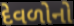
દેવળોનો